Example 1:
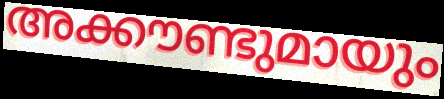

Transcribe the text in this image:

അക്കൗണ്ടുമായും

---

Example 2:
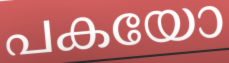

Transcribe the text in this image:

പകയോ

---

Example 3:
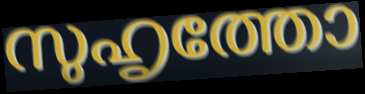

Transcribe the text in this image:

സുഹൃത്തോ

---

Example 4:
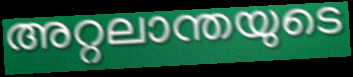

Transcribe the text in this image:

അറ്റലാന്തയുടെ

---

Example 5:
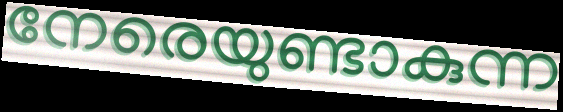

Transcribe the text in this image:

നേരെയുണ്ടാകുന്ന